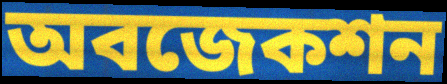
অবজেকশন